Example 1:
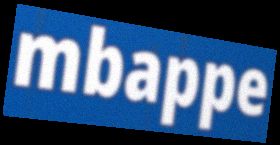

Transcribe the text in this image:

mbappe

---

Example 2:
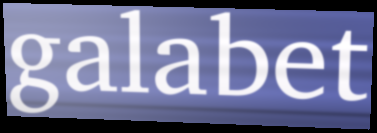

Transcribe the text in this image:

galabet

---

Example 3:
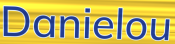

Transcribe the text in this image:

Danielou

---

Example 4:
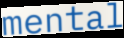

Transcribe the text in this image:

mental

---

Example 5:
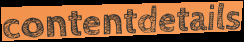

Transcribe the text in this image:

contentdetails